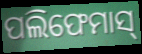
ପଲିଫେମାସ୍